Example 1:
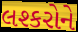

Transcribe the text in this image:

લશ્કરોને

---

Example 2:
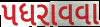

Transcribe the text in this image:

પધરાવવા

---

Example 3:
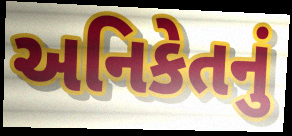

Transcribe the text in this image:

અનિકેતનું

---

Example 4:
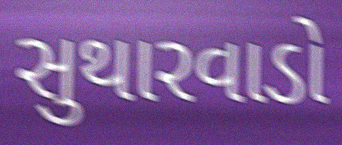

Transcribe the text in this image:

સુથારવાડો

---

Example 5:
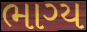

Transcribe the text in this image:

ભાગ્ય